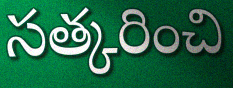
సత్కరించి